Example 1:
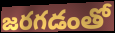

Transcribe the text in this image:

జరగడంతో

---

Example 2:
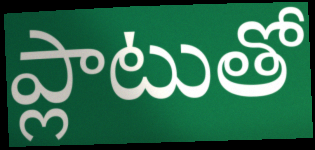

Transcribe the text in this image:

ప్లాటుతో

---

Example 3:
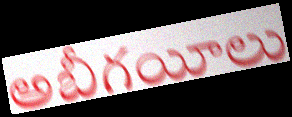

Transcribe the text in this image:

అబీగయీలు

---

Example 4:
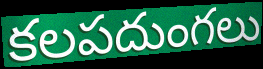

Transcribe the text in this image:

కలపదుంగలు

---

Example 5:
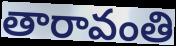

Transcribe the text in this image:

తారావంతి